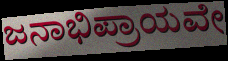
ಜನಾಭಿಪ್ರಾಯವೇ